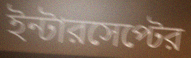
ইন্টারসেপ্টের